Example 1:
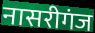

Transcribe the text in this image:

नासरीगंज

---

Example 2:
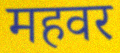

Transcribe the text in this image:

महवर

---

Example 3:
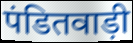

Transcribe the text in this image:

पंडितवाड़ी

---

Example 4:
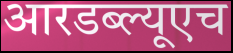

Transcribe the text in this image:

आरडब्ल्यूएच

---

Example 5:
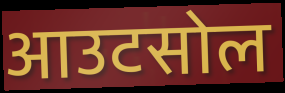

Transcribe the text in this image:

आउटसोल